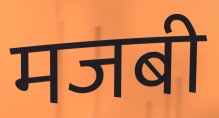
मजबी